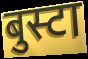
बुस्टा